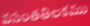
వసంతతిలకము